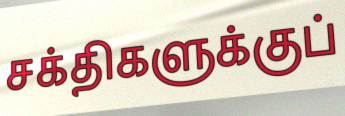
சக்திகளுக்குப்